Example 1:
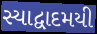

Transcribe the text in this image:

સ્યાદ્વાદમયી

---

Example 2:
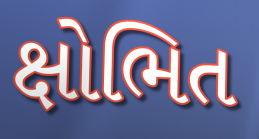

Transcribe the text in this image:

ક્ષોભિત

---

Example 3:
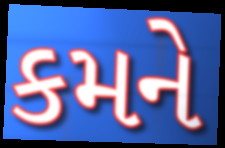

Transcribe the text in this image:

કમને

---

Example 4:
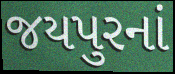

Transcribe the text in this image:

જયપુરનાં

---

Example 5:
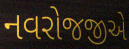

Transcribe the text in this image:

નવરોજજીએ